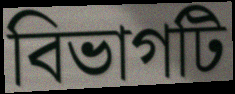
বিভাগটি